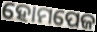
ହୋମପେଜ